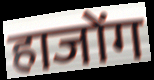
हाजोंग